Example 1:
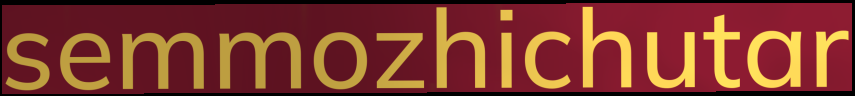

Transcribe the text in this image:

semmozhichutar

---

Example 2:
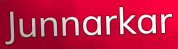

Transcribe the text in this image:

Junnarkar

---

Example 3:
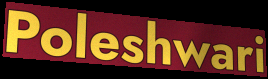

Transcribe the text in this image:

Poleshwari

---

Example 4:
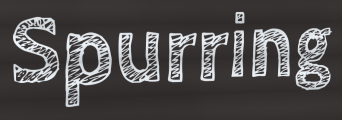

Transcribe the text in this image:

Spurring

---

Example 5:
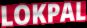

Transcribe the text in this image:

LOKPAL